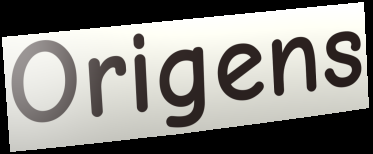
Origens